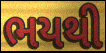
ભયથી